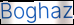
Boghaz